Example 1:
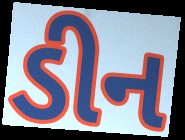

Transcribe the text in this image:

ડીન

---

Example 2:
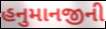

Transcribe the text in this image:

હનુમાનજીની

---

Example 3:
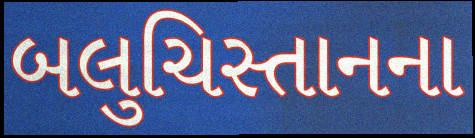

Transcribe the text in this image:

બલુચિસ્તાનના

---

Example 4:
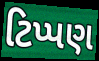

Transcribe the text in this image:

ટિપ્પણ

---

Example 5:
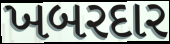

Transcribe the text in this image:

ખબરદાર